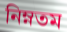
নিম্নতম